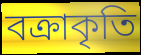
বক্রাকৃতি